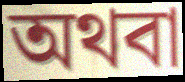
অথবা